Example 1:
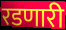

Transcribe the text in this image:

रडणारी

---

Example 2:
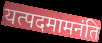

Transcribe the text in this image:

यत्पदमामनंति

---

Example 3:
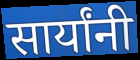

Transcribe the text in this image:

सार्यांनी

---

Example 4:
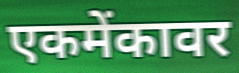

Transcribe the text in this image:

एकमेंकावर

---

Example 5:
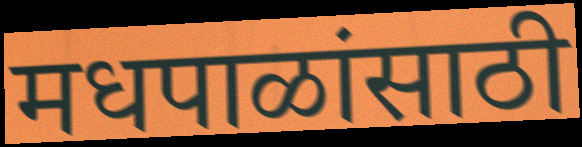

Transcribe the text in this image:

मधपाळांसाठी